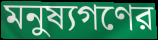
মনুষ্যগণের